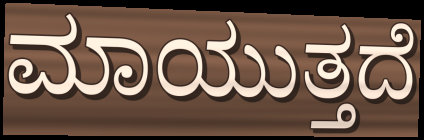
ಮಾಯುತ್ತದೆ